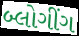
બ્લોગીંગ